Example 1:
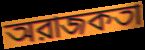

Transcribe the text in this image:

অরাজকতা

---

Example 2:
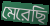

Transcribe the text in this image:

মেরেছি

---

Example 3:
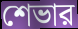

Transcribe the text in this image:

শেভার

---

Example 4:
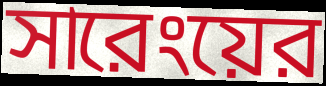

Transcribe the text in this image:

সারেংয়ের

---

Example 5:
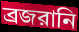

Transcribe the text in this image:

ব্রজরানি